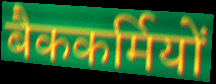
बैककर्मियों